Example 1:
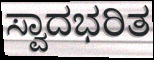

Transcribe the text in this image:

ಸ್ವಾದಭರಿತ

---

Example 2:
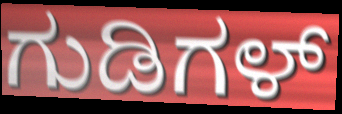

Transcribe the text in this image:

ಗುಡಿಗಳ್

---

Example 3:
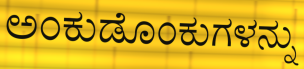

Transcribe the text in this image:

ಅಂಕುಡೊಂಕುಗಳನ್ನು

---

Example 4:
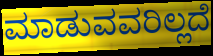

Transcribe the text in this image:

ಮಾಡುವವರಿಲ್ಲದೆ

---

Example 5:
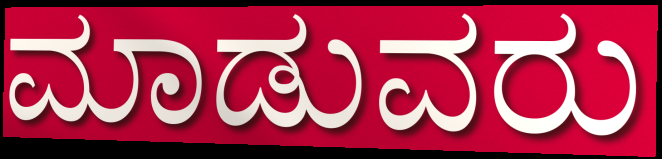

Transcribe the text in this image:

ಮಾಡುವರು